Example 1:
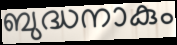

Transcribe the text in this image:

ബുദ്ധനാകും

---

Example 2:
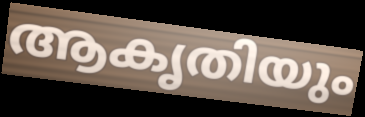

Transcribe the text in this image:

ആകൃതിയും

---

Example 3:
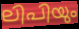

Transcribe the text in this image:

ലിപിയും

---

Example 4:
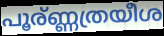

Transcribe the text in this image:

പൂര്ണ്ണത്രയീശ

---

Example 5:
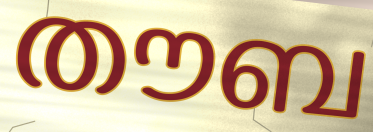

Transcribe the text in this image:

തൗബ